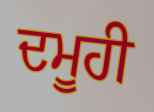
ਦਮੂਹੀ